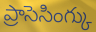
ప్రాసెసింగ్కు